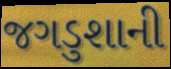
જગડુશાની